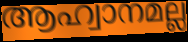
ആഹ്വാനമല്ല